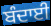
ਬੰਦਾਈ